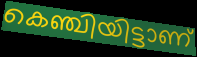
കെഞ്ചിയിട്ടാണ്